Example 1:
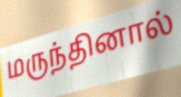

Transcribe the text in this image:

மருந்தினால்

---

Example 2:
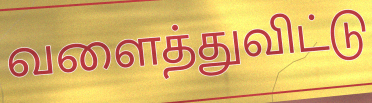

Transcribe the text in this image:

வளைத்துவிட்டு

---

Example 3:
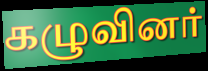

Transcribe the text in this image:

கழுவினர்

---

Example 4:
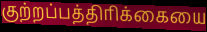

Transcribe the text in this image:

குற்றப்பத்திரிக்கையை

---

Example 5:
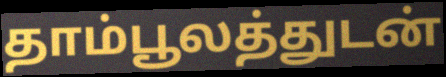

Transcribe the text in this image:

தாம்பூலத்துடன்